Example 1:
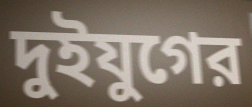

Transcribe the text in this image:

দুইযুগের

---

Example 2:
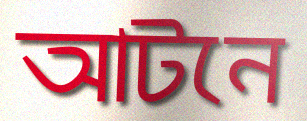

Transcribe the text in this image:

আটনে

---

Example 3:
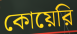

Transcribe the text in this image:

কোয়েরি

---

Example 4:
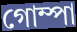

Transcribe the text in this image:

গোম্পা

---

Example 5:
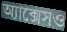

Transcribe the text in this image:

অ্যাক্সেসও